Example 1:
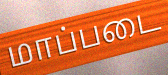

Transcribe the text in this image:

மாப்படை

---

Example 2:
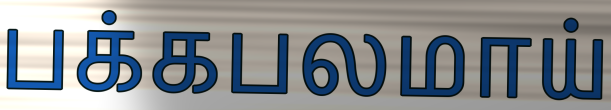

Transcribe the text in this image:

பக்கபலமாய்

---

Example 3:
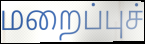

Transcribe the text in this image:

மறைப்புச்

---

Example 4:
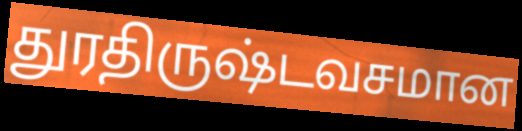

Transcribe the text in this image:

துரதிருஷ்டவசமான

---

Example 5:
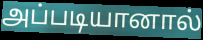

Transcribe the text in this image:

அப்படியானால்